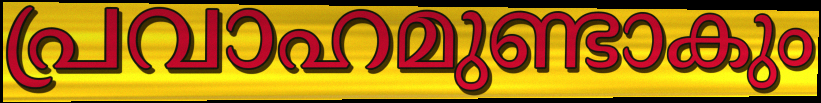
പ്രവാഹമുണ്ടാകും